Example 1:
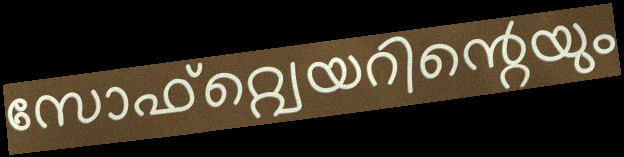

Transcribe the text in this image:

സോഫ്റ്റ്വെയറിന്റെയും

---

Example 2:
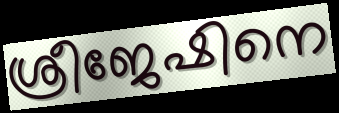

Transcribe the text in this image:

ശ്രീജേഷിനെ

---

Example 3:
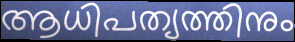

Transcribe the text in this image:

ആധിപത്യത്തിനും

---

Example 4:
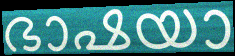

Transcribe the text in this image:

ഭാഷയാ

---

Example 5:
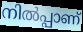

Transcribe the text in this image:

നിൽപ്പാണ്